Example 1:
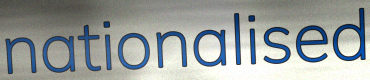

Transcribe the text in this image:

nationalised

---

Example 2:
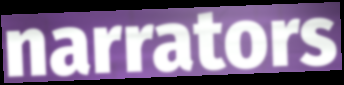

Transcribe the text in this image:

narrators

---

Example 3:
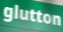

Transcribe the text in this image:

glutton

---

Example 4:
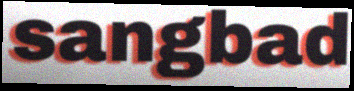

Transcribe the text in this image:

sangbad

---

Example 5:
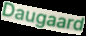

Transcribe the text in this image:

Daugaard